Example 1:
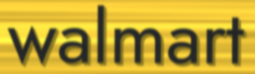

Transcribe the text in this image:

walmart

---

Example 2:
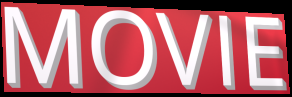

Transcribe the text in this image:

MOVIE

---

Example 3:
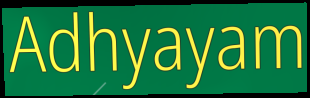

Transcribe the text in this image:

Adhyayam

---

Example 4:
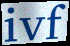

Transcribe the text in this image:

ivf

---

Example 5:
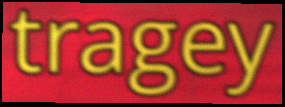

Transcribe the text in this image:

tragey